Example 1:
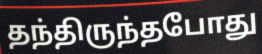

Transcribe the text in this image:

தந்திருந்தபோது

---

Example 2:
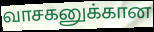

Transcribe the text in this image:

வாசகனுக்கான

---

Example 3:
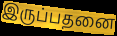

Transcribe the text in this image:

இருப்பதனை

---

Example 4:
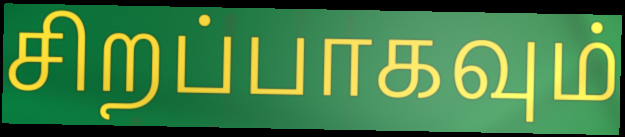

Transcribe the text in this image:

சிறப்பாகவும்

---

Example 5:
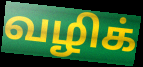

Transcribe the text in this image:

வழிக்